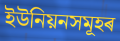
ইউনিয়নসমূহৰ